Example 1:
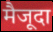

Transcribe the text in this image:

मैजूदा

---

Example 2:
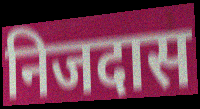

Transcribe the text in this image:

निजदास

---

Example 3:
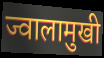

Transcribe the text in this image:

ज्वालामुखी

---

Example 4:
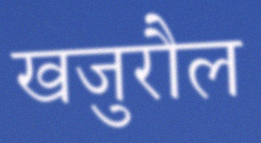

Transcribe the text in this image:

खजुरौल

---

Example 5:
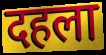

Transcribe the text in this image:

दहला